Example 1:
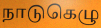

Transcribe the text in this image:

நாடுகெழு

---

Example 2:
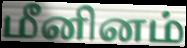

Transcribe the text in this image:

மீனினம்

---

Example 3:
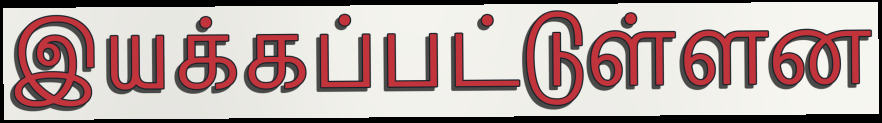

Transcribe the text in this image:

இயக்கப்பட்டுள்ளன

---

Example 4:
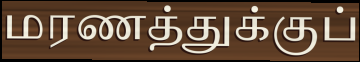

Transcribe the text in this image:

மரணத்துக்குப்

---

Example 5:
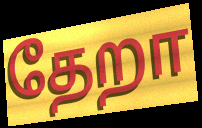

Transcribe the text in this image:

தேறா